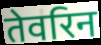
तेवरिन